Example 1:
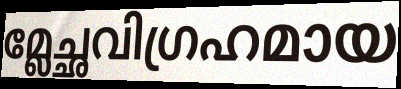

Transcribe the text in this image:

മ്ലേച്ഛവിഗ്രഹമായ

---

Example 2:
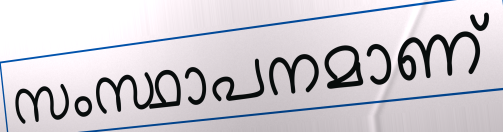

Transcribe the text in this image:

സംസ്ഥാപനമാണ്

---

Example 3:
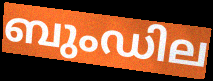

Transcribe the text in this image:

ബുംഡില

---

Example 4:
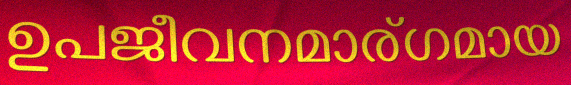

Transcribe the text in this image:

ഉപജീവനമാര്ഗമായ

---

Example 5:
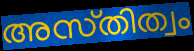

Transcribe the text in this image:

അസ്‌തിത്വം